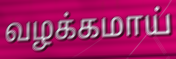
வழக்கமாய்